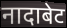
नादाबेट